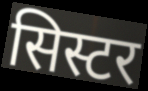
सिस्टर